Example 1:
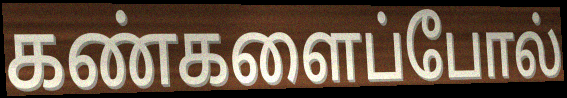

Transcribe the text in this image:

கண்களைப்போல்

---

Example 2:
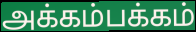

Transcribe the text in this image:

அக்கம்பக்கம்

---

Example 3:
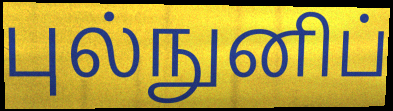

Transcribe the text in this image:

புல்நுனிப்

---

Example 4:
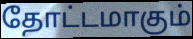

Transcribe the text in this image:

தோட்டமாகும்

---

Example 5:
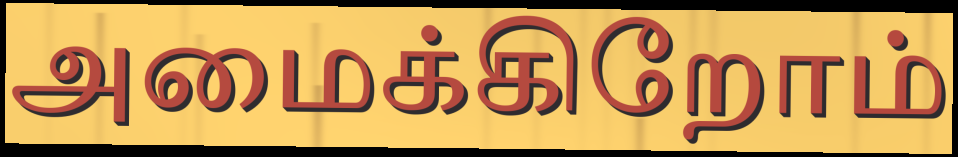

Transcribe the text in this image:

அமைக்கிறோம்